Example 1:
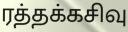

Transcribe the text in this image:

ரத்தக்கசிவு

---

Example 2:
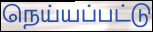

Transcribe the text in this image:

நெய்யப்பட்டு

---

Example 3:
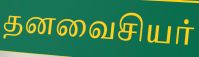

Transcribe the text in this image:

தனவைசியர்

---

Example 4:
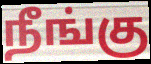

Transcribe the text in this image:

நீங்கு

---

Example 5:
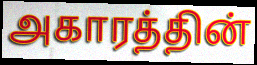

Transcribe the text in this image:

அகாரத்தின்